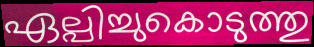
ഏല്പിച്ചുകൊടുത്തു